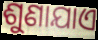
ଶୁଣାଯାଏ